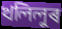
খলিলুৰ